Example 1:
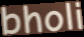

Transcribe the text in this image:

bholi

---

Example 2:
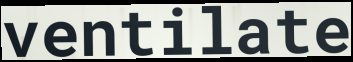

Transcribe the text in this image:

ventilate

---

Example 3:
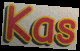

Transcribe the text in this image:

Kas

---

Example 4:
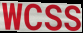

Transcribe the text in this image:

WCSS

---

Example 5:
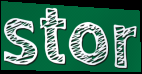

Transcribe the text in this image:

stor